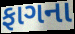
ફાગના